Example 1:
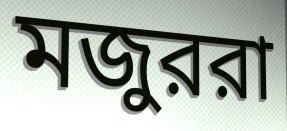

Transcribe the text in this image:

মজুররা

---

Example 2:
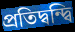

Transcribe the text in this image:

প্রতিদ্বন্দ্বি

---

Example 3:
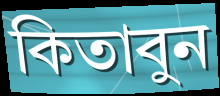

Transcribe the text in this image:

কিতাবুন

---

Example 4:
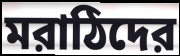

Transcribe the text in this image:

মরাঠিদের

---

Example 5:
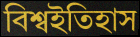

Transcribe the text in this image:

বিশ্বইতিহাস